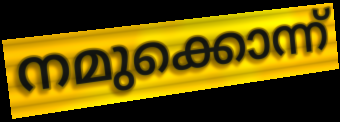
നമുക്കൊന്ന്